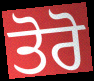
ਤੋਰੋ